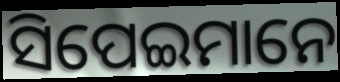
ସିପେଇମାନେ